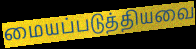
மையப்படுத்தியவை